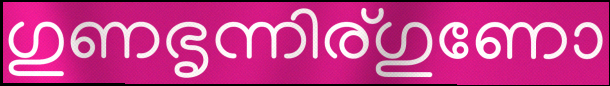
ഗുണഭൃന്നിര്ഗുണോ